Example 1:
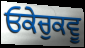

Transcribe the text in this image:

ਓਕੇਚੁਕਵੂ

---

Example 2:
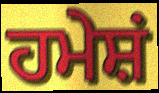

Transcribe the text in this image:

ਹਮੇਸ਼ਂ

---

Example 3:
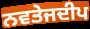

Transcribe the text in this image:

ਨਵਤੇਜਦੀਪ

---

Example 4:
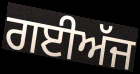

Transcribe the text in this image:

ਗਈਅੱਜ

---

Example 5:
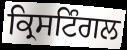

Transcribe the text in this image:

ਕ੍ਰਿਸਟਿੰਗਲ